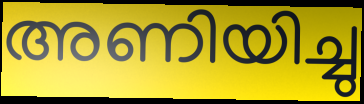
അണിയിച്ചു